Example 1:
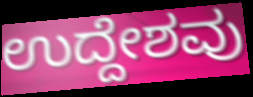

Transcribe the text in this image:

ಉದ್ದೇಶವು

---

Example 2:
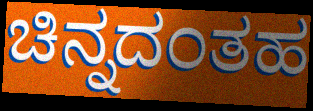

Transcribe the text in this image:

ಚಿನ್ನದಂತಹ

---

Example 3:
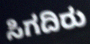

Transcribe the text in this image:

ಸಿಗದಿರು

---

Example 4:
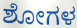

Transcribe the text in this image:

ಶೋಗಳ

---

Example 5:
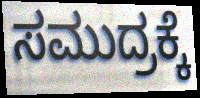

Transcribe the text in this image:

ಸಮುದ್ರಕ್ಕೆ